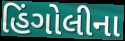
હિંગોલીના